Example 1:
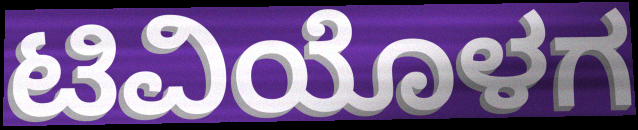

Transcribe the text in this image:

ಟಿವಿಯೊಳಗ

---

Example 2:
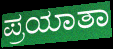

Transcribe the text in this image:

ಪ್ರಯಾತಾ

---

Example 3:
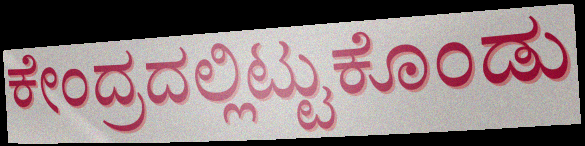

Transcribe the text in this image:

ಕೇಂದ್ರದಲ್ಲಿಟ್ಟುಕೊಂಡು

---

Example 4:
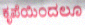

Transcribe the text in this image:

ಕೃಪೆಯಿಂದಲೂ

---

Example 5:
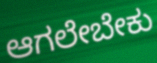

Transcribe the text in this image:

ಆಗಲೇಬೇಕು